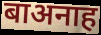
बाअनाह